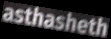
asthasheth